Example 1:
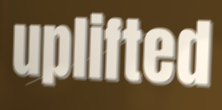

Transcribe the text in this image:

uplifted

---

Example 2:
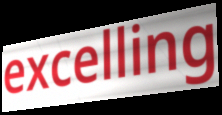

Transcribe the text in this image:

excelling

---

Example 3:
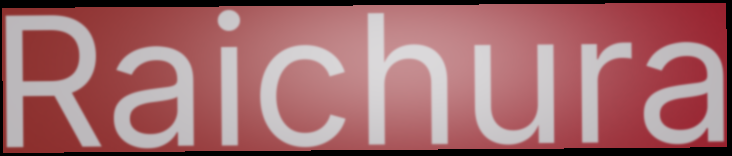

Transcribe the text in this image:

Raichura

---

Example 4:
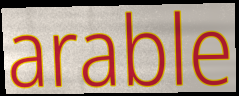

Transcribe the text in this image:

arable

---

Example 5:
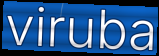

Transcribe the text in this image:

viruba